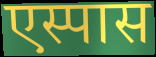
एस्पास